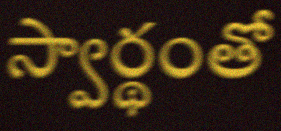
స్వార్థంతో